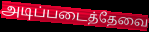
அடிப்படைத்தேவை